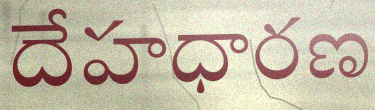
దేహధారణ